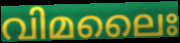
വിമലൈഃ